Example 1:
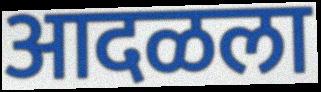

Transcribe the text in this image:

आदळला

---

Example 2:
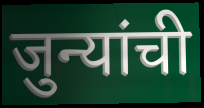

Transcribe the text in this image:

जुन्यांची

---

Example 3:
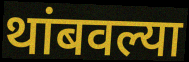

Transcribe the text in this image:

थांबवल्या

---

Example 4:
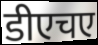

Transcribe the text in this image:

डीएचए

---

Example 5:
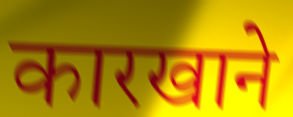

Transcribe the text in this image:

कारखाने